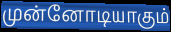
முன்னோடியாகும்